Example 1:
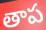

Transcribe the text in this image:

తాప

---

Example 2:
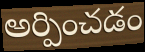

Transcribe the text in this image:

అర్పించడం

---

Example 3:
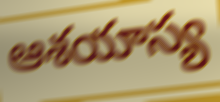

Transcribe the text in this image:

ఆశయాస్య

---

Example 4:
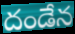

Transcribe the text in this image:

దండేన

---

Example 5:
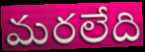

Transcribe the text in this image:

మరలేది